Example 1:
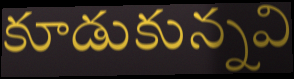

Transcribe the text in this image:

కూడుకున్నవి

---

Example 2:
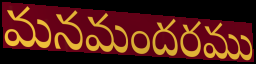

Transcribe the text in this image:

మనమందరము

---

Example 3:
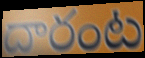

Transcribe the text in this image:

దారంట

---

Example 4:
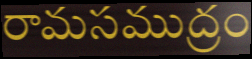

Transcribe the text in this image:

రామసముద్రం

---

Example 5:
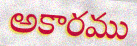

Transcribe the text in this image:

అకారము